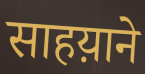
साहय़ाने